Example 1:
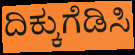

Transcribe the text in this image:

ದಿಕ್ಕುಗೆಡಿಸಿ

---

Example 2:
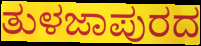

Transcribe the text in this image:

ತುಳಜಾಪುರದ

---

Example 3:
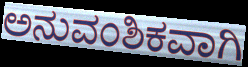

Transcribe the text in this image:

ಅನುವಂಶಿಕವಾಗಿ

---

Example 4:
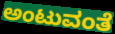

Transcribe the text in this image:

ಅಂಟುವಂತೆ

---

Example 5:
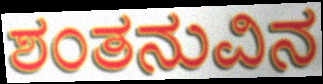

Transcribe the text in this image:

ಶಂತನುವಿನ